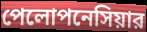
পেলোপনেসিয়ার